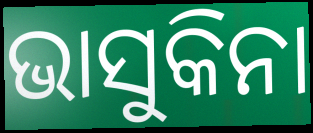
ଭାସୁକିନା